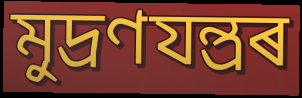
মুদ্ৰণযন্ত্ৰৰ